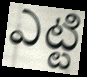
ఎట్టి